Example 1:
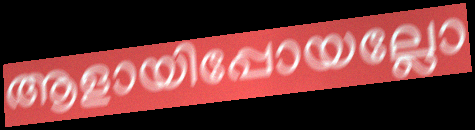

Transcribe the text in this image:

ആളായിപ്പോയല്ലോ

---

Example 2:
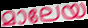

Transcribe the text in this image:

മാലേയ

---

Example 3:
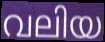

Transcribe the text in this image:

വലിയ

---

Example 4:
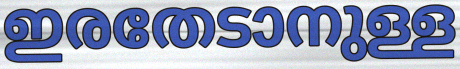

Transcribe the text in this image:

ഇരതേടാനുള്ള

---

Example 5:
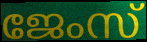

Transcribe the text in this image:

ജേംസ്